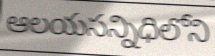
ఆలయసన్నిధిలోని